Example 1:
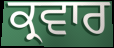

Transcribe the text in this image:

ਕ੍ਰਵਾਰ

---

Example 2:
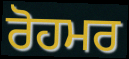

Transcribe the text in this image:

ਰੋਹਮਰ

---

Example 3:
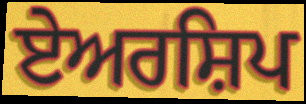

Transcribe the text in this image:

ਏਅਰਸ਼ਿਪ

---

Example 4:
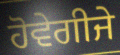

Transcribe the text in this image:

ਹੋਵੇਗੀਜੇ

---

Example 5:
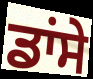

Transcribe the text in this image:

ਡਾਂਸੇ